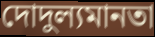
দোদুল্যমানতা